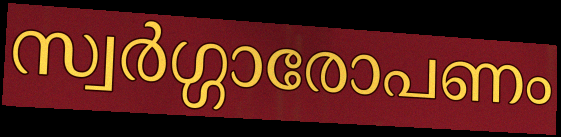
സ്വർഗ്ഗാരോപണം